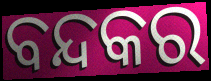
ବନ୍ଦକର